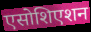
एसोशिएशन